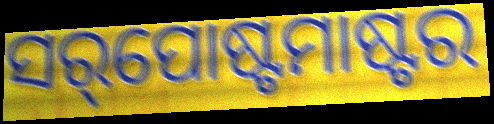
ସର୍‌ପୋଷ୍ଟମାଷ୍ଟର